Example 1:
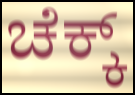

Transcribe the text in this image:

ಚೆಕ್ಕ್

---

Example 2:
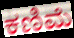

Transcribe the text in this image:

ಕಣಿಮೆ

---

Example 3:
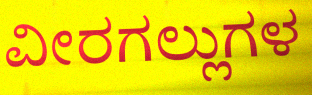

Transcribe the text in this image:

ವೀರಗಲ್ಲುಗಳ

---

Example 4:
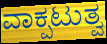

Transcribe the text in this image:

ವಾಕ್ಪಟುತ್ವ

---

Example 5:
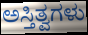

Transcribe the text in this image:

ಅಸ್ತಿತ್ವಗಳು